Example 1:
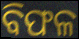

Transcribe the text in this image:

ବିଫଳ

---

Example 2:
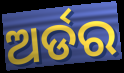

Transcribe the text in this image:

ଅର୍ଡର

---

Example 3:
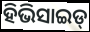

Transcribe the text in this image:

ହିଭିସାଇଡ୍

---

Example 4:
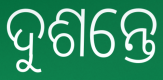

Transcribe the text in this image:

ଦୁଶନ୍ତେ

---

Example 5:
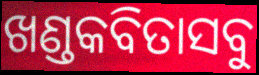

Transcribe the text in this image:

ଖଣ୍ଡକବିତାସବୁ